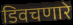
डिवचणारे